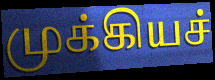
முக்கியச்